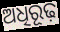
ଅଧିରୂଢ଼